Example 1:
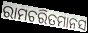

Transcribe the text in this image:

ରାମଚରିତମାନସ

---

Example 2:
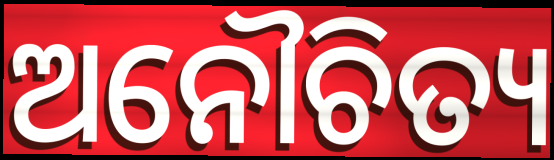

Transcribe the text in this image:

ଅନୌଚିତ୍ୟ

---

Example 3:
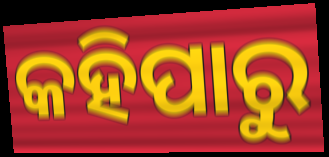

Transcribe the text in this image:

କହିପାରୁ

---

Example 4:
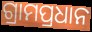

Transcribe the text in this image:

ଗ୍ରାମପ୍ରଧାନ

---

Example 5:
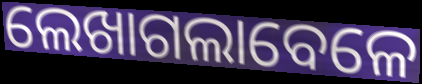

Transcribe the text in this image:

ଲେଖାଗଲାବେଳେ